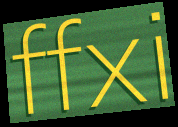
ffxi